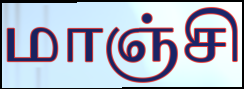
மாஞ்சி